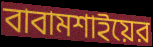
বাবামশাইয়ের